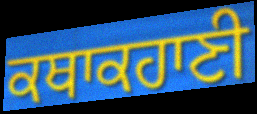
ਕਥਾਕਹਾਣੀ